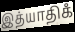
இத்யாதிகஂ